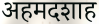
अहमदशाह